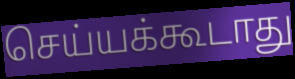
செய்யக்கூடாது